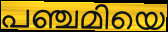
പഞ്ചമിയെ